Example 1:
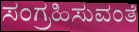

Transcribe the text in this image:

ಸಂಗ್ರಹಿಸುವಂತೆ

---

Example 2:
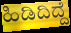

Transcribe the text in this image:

ಹಿಡಿದಿದ್ದೆ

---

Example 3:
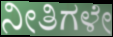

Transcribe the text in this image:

ನೀತಿಗಳೇ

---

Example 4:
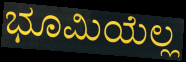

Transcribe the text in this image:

ಭೂಮಿಯೆಲ್ಲ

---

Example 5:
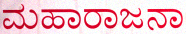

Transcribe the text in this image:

ಮಹಾರಾಜನಾ